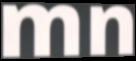
mn